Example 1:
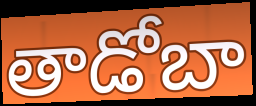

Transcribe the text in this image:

తాడోబా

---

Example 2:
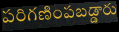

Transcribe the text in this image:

పరిగణింపబడ్డారు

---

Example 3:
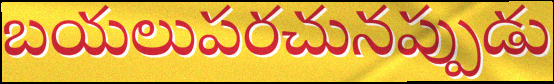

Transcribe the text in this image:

బయలుపరచునప్పుడు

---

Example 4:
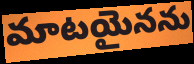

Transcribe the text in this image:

మాటయైనను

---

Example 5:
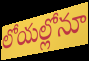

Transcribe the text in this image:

లోయల్లోనూ